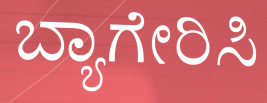
ಬ್ಯಾಗೇರಿಸಿ